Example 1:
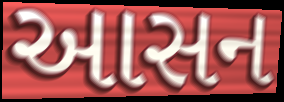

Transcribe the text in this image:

આસન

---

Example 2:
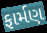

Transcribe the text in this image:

ફાર્મણ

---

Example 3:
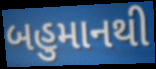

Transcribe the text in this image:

બહુમાનથી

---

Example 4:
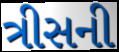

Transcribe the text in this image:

ત્રીસની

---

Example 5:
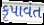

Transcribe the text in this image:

કૃપાવંત